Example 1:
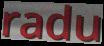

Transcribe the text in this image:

radu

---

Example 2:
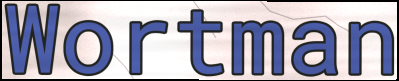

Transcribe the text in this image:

Wortman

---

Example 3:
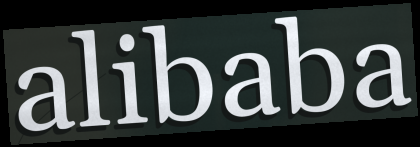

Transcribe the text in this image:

alibaba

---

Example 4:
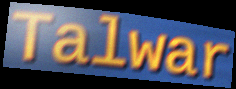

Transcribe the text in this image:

Talwar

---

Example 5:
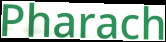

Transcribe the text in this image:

Pharach